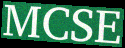
MCSE